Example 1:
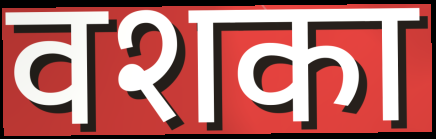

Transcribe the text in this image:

वशका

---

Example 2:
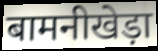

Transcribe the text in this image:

बामनीखेड़ा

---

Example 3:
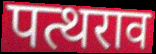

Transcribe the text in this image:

पत्थराव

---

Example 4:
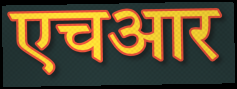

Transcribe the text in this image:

एचआर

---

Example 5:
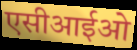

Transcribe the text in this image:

एसीआईओ